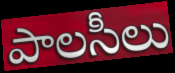
పాలసీలు